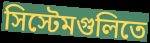
সিস্টেমগুলিতে